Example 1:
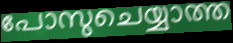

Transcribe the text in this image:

പോസുചെയ്യാത്ത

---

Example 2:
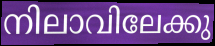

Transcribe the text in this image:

നിലാവിലേക്കു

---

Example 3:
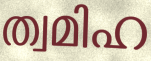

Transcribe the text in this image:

ത്വമിഹ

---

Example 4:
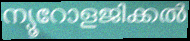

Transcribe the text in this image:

ന്യൂറോളജിക്കൽ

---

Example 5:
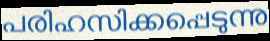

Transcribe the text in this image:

പരിഹസിക്കപ്പെടുന്നു